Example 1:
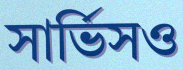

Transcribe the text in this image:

সার্ভিসও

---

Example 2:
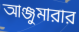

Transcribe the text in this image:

আঞ্জুমারার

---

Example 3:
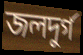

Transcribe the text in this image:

জলদুর্গ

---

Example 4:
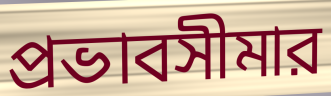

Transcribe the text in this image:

প্রভাবসীমার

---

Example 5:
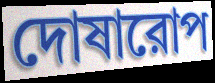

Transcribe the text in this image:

দোষারোপ